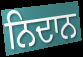
ਨਿਦਾਨ